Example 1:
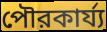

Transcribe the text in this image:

পৌরকার্য্য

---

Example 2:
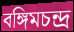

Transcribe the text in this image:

বঙ্গিমচন্দ্র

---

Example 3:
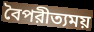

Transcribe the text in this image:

বৈপরীত্যময়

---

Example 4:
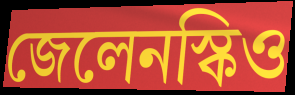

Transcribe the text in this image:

জেলেনস্কিও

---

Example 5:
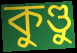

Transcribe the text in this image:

কুণ্ডু